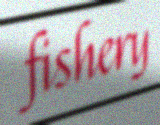
fishery